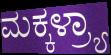
ಮಕ್ಕಳ್ರ್ಯಾ